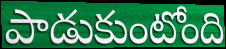
పాడుకుంటోంది